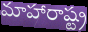
మాహారాష్ట్ర